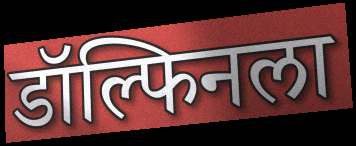
डॉल्फिनला